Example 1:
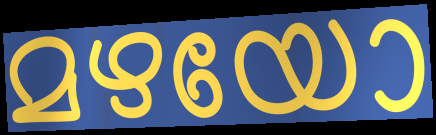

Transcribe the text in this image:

മഴയോ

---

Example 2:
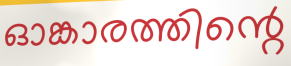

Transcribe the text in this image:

ഓങ്കാരത്തിന്റെ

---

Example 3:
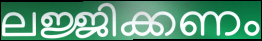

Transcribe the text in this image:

ലജ്ജിക്കണം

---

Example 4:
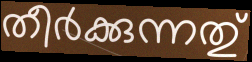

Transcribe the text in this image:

തീർക്കുന്നതു്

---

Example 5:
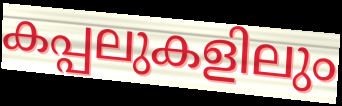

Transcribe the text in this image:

കപ്പലുകളിലും